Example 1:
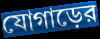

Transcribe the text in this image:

যোগাড়ের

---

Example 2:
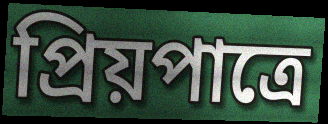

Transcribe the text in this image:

প্রিয়পাত্রে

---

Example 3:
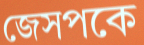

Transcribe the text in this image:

জেসপকে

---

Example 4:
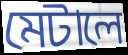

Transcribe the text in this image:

মেটালে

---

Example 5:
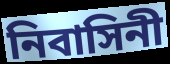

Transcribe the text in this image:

নিবাসিনী